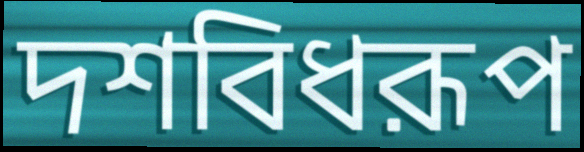
দশবিধরূপ